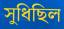
সুধিছিল